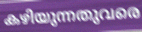
കഴിയുന്നതുവരെ